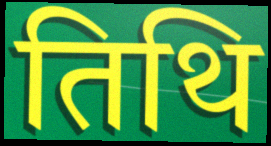
तिथि